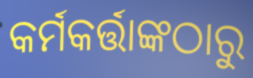
କର୍ମକର୍ତ୍ତାଙ୍କଠାରୁ